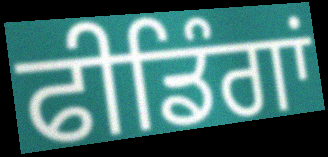
ਫੀਡਿੰਗਾਂ